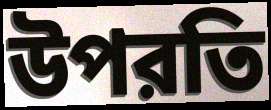
উপরতি